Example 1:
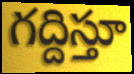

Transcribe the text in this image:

గద్దిస్తూ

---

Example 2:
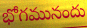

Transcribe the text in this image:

భోగమునందు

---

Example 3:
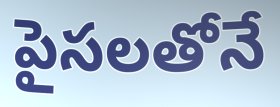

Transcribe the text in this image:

పైసలతోనే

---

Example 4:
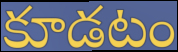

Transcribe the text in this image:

కూడటం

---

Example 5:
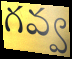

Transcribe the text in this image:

గవ్వ